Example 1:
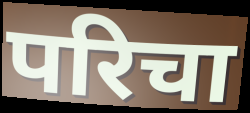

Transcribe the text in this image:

परिचा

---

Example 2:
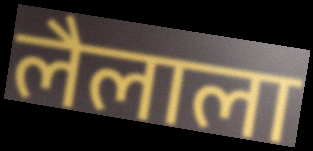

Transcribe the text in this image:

लैलाला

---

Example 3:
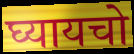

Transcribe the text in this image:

घ्यायचो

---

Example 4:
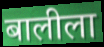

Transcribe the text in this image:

बालीला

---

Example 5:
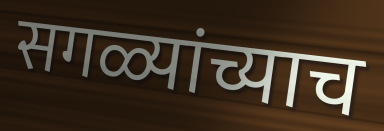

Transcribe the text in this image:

सगळ्यांच्याच